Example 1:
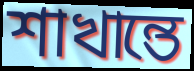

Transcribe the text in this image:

শাখান্তে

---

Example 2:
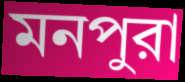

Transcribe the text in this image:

মনপুরা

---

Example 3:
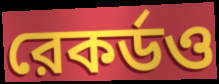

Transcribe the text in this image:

রেকর্ডও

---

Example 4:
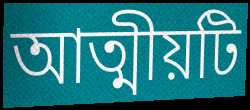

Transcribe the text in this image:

আত্মীয়টি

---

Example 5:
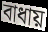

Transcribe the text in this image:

বাধায়